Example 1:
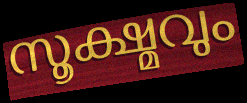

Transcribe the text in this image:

സൂക്ഷ്മവും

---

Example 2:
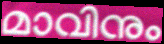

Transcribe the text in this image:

മാവിനും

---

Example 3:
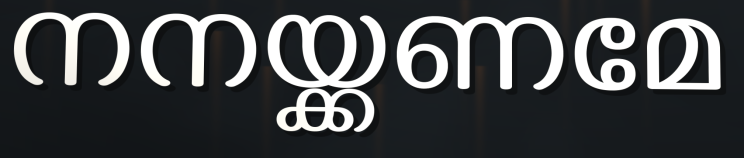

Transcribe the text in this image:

നനയ്ക്കണമേ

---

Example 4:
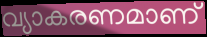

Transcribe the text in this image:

വ്യാകരണമാണ്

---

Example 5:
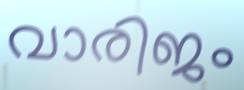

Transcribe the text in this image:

വാരിജം